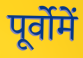
पूर्वोमें